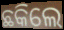
ଛକିଲେ